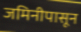
जमिनीपासून